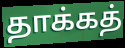
தாக்கத்